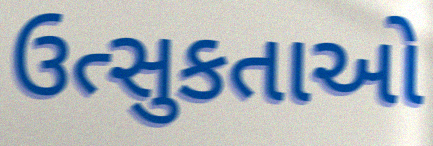
ઉત્સુકતાઓ